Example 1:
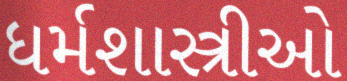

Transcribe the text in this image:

ધર્મશાસ્ત્રીઓ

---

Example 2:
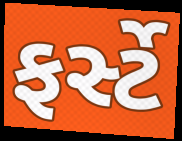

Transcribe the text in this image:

ફર્સ્ટે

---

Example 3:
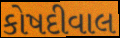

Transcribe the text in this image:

કોષદીવાલ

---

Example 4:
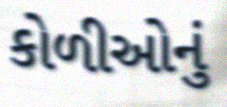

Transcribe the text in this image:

કોળીઓનું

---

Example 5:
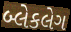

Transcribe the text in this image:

બ્લેકલેગ